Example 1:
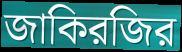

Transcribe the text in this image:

জাকিরজির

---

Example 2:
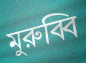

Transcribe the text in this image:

মুরুব্বি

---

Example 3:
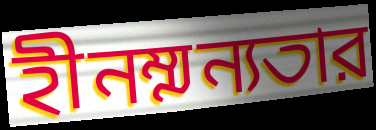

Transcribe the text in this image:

হীনম্মন্যতার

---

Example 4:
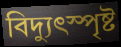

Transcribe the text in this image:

বিদ্যুৎস্পৃষ্ট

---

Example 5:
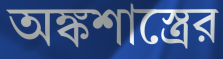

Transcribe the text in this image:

অঙ্কশাস্ত্রের